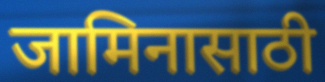
जामिनासाठी